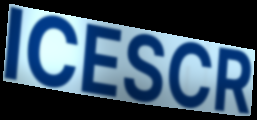
ICESCR